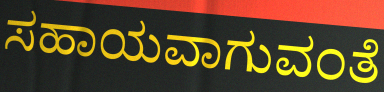
ಸಹಾಯವಾಗುವಂತೆ